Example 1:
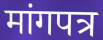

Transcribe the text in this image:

मांगपत्र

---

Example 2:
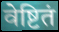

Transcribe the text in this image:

वेष्टितं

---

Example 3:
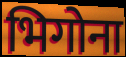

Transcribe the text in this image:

भिगोना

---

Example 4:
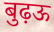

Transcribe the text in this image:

बुढ़ऊ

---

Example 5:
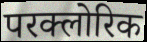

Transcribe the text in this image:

परक्लोरिक